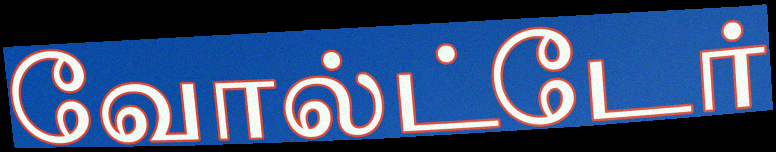
வோல்ட்டேர்